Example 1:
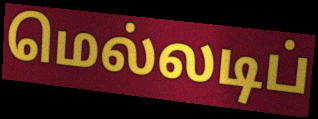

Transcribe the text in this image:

மெல்லடிப்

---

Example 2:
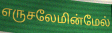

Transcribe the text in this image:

எருசலேமின்மேல்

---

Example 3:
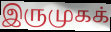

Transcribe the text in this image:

இருமுகக்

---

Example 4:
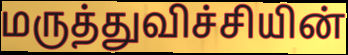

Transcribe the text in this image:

மருத்துவிச்சியின்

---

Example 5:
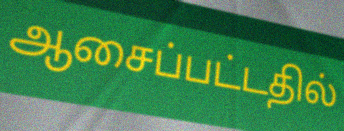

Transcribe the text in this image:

ஆசைப்பட்டதில்